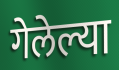
गेलेल्या